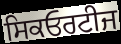
ਸਿਕਓਰਟੀਜ